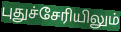
புதுச்சேரியிலும்